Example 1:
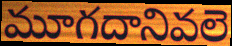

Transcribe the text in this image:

మూగదానివలె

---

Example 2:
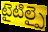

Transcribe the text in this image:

టైటిల్పై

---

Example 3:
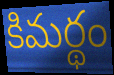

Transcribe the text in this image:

కిమర్థం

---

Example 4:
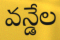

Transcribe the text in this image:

వన్డేల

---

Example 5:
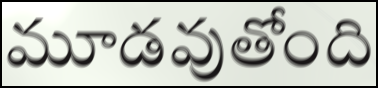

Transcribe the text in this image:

మూడవుతోంది